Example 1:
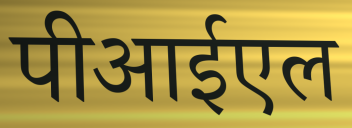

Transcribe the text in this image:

पीआईएल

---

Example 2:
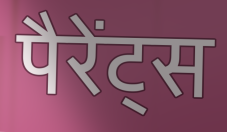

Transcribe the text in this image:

पैरेंट्स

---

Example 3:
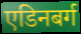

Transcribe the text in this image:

एडिनबर्ग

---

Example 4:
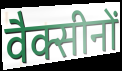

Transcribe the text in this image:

वैक्सीनों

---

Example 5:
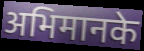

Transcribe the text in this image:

अभिमानके